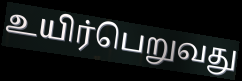
உயிர்பெறுவது